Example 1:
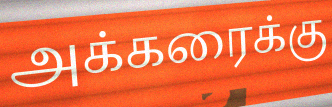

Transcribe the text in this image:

அக்கரைக்கு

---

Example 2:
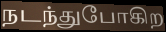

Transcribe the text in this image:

நடந்துபோகிற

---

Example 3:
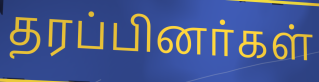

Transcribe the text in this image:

தரப்பினர்கள்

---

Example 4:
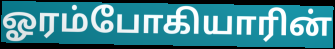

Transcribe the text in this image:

ஓரம்போகியாரின்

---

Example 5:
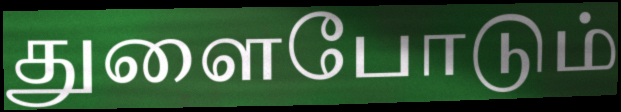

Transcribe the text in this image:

துளைபோடும்